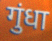
गुंधा